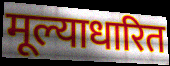
मूल्याधारित